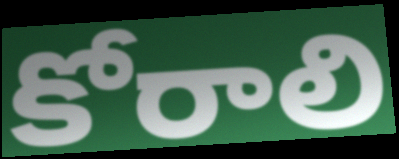
కోరాలి